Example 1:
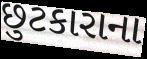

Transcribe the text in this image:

છુટકારાના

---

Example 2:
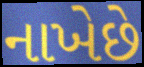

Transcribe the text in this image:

નાખેછે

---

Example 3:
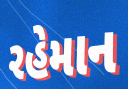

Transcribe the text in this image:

રહેમાન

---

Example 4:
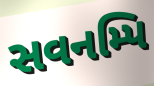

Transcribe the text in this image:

સવનમ્પિ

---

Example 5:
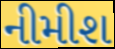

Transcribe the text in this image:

નીમીશ